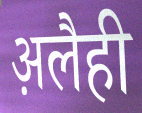
अ़लैही